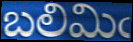
బలిమిఁ